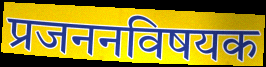
प्रजननविषयक